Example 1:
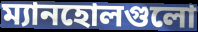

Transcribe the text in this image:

ম্যানহোলগুলো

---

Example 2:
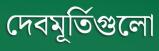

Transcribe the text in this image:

দেবমূর্তিগুলো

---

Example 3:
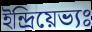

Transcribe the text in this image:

ইন্দ্রিয়েভ্যঃ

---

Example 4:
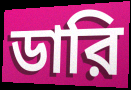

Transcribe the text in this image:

ডারি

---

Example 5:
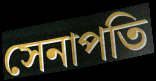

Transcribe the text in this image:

সেনাপতি